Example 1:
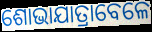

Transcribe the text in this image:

ଶୋଭାଯାତ୍ରାବେଳେ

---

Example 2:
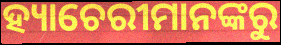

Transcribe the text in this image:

ହ୍ୟାଚେରୀମାନଙ୍କରୁ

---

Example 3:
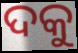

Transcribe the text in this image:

ଦକୁ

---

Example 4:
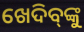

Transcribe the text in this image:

ଖେଦିବ୍‌ଙ୍କୁ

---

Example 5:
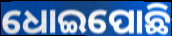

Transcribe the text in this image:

ଧୋଇପୋଛି